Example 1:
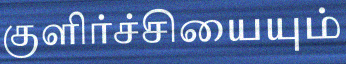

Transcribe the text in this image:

குளிர்ச்சியையும்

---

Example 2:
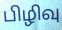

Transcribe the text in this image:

பிழிவு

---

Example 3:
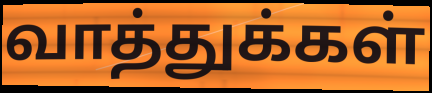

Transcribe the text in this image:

வாத்துக்கள்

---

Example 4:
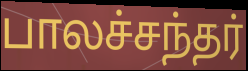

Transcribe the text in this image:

பாலச்சந்தர்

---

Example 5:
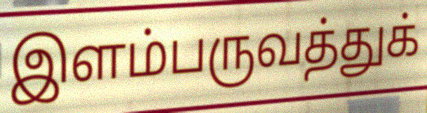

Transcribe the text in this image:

இளம்பருவத்துக்